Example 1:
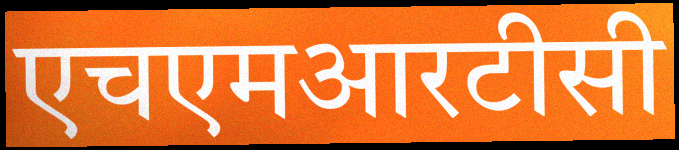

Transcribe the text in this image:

एचएमआरटीसी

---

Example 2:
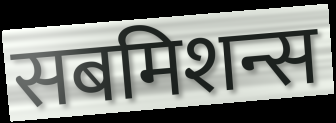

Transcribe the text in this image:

सबमिशन्स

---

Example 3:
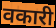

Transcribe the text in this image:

वकारी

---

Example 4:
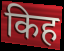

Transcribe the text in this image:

किह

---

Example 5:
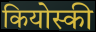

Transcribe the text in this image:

कियोस्की